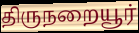
திருநறையூர்